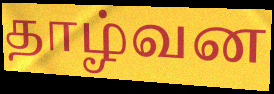
தாழ்வன